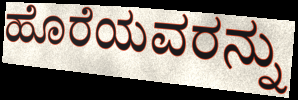
ಹೊರೆಯವರನ್ನು